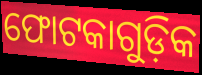
ଫୋଟକାଗୁଡ଼ିକ